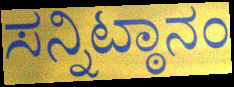
ಸನ್ನಿಟ್ಠಾನಂ